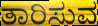
ತಾರಿಸುವ